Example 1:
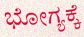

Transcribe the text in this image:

ಭೋಗ್ಯಕ್ಕೆ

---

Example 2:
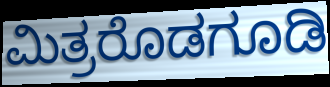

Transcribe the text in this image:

ಮಿತ್ರರೊಡಗೂಡಿ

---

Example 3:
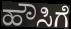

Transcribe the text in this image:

ಹೌಸಿಗೆ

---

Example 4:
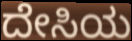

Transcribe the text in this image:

ದೇಸಿಯ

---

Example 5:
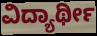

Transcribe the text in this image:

ವಿದ್ಯಾರ್ಥೀ